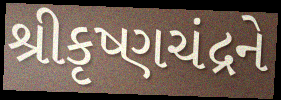
શ્રીકૃષ્ણચંદ્રને